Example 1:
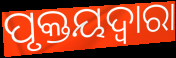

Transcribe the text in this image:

ପୃକ୍ତୟଦ୍ଵାରା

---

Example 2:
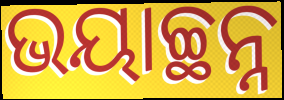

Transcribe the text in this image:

ଭୟାଚ୍ଛନ୍ନ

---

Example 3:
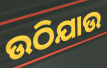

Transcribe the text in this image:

ଉଠିଯାଉ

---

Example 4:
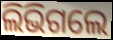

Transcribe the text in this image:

ଲିଭିଗଲେ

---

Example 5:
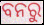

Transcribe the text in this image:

ବନରୁ